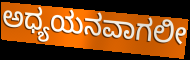
ಅಧ್ಯಯನವಾಗಲೀ